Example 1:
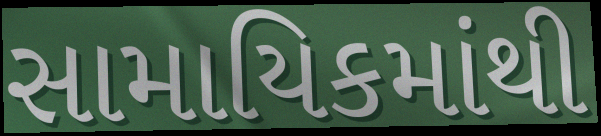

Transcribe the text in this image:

સામાયિકમાંથી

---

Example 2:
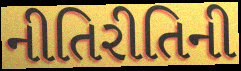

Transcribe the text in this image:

નીતિરીતિની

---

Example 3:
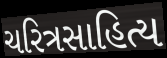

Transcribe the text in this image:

ચરિત્રસાહિત્ય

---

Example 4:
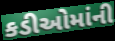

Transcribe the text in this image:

કડીઓમાંની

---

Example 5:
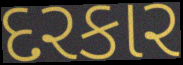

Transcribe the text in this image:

દરકાર